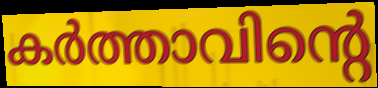
കർത്താവിന്റെ